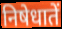
निषेधातें